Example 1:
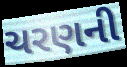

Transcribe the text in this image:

ચરણની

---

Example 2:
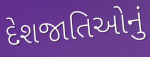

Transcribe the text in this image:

દેશજાતિઓનું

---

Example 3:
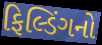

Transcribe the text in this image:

ફિલ્ડિંગનો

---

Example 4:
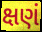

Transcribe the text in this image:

ક્ષણં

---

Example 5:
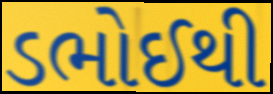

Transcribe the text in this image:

ડભોઈથી